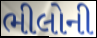
ભીલોની